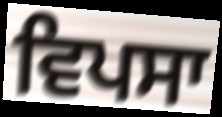
ਵਿਪਸਾ